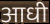
आधी